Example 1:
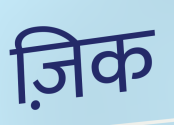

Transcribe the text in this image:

ज़िक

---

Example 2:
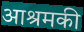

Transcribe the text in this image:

आश्रमकी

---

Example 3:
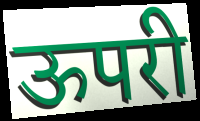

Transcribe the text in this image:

ऊपरी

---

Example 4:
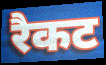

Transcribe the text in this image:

रैकट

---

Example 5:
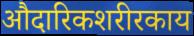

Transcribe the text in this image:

औदारिकशरीरकाय